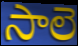
సాలె